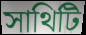
সাথিটি